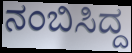
ನಂಬಿಸಿದ್ದ